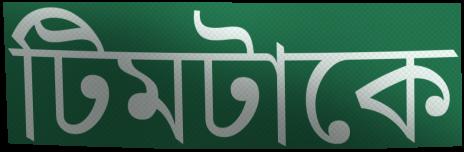
টিমটাকে